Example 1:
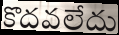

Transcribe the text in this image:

కొదవలేదు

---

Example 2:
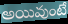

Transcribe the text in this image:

అయివుంటే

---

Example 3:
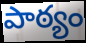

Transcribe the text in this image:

పాఠ్యం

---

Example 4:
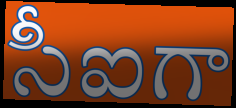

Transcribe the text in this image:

సీఐగా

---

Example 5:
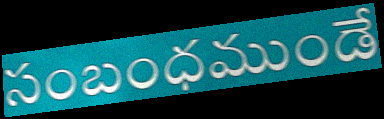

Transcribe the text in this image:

సంబంధముండే